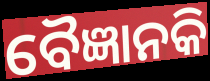
ବୈଜ୍ଞାନକି